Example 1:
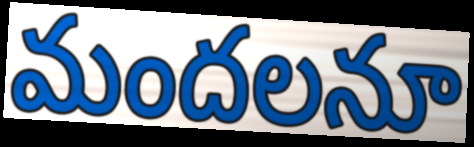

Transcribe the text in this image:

మందలనూ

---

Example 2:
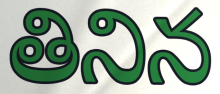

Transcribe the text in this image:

తినిన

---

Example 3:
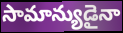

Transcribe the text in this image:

సామాన్యుడైనా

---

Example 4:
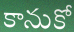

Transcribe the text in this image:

కానుకో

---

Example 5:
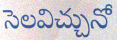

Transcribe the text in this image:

సెలవిచ్చునో